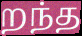
றந்த